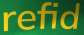
refid